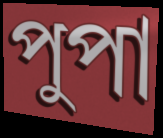
পুপা